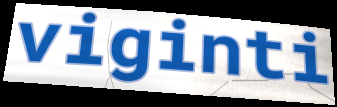
viginti